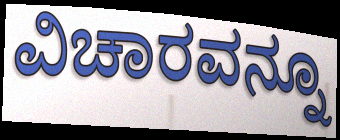
ವಿಚಾರವನ್ನೂ